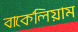
বার্কেলিয়াম